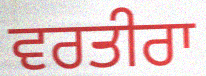
ਵਰਤੀਰਾ